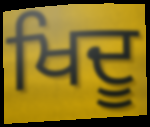
ਖਿਦੂ